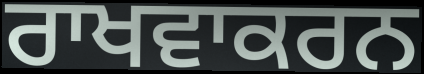
ਰਾਖਵਾਕਰਨ